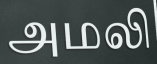
அமலி